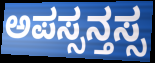
ಅಪಸ್ಸನ್ತಸ್ಸ